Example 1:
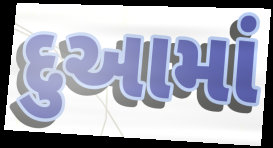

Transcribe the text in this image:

દુઆમાં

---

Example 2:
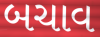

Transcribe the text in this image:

બચાવ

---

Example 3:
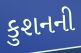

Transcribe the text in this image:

કુશનની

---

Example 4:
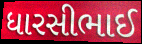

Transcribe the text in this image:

ધારસીભાઈ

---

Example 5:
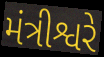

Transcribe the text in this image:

મંત્રીશ્વરે